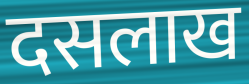
दसलाख